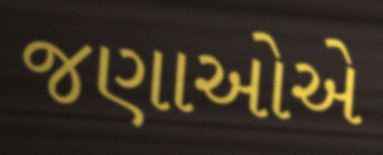
જણાઓએ